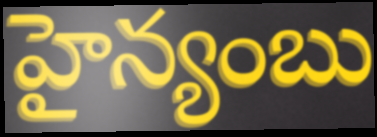
హైన్యంబు